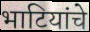
भाटियांचे